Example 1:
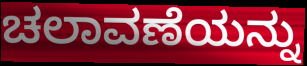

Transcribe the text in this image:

ಚಲಾವಣೆಯನ್ನು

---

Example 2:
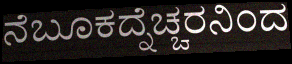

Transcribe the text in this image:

ನೆಬೂಕದ್ನೆಚ್ಚರನಿಂದ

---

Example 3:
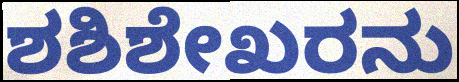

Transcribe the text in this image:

ಶಶಿಶೇಖರನು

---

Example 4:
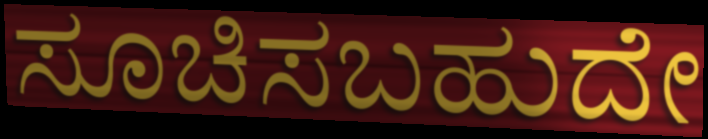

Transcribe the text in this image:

ಸೂಚಿಸಬಹುದೇ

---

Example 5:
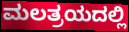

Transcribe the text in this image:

ಮಲತ್ರಯದಲ್ಲಿ